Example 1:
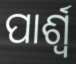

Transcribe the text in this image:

ପାର୍ଶ୍ୱ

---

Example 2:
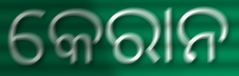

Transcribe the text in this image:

କେରାନ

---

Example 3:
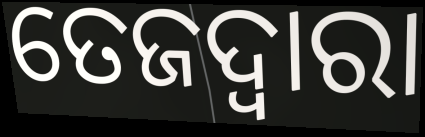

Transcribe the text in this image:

ତେଜଦ୍ୱାରା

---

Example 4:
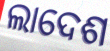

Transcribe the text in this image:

ଲାଦେଶ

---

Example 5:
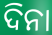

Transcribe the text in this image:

ଦିନା